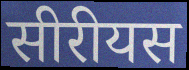
सीरीयस